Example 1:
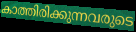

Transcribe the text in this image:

കാത്തിരിക്കുന്നവരുടെ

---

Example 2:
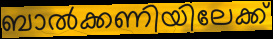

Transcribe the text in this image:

ബാൽക്കണിയിലേക്ക്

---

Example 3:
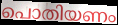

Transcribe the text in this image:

പൊതിയണം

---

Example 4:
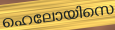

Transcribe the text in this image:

ഹെലോയിസെ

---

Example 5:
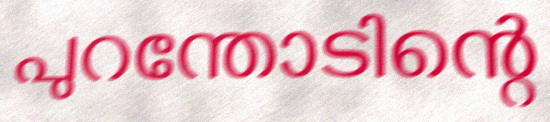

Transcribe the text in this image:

പുറന്തോടിന്റെ